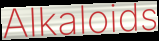
Alkaloids